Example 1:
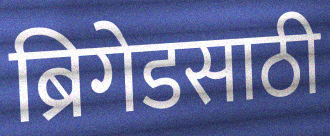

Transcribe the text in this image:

ब्रिगेडसाठी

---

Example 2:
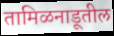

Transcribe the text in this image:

तामिळनाडूतील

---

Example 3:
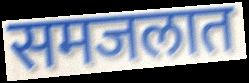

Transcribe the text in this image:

समजलात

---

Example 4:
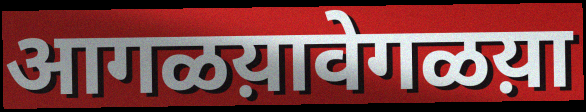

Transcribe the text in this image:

आगळय़ावेगळय़ा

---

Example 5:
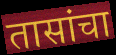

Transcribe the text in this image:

तासांचा